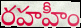
రహహీం